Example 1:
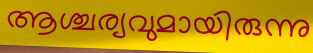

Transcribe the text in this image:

ആശ്ചര്യവുമായിരുന്നു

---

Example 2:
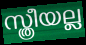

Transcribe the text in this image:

സ്ത്രീയല്ല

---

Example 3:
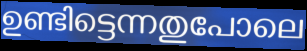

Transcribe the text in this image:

ഉണ്ടിട്ടെന്നതുപോലെ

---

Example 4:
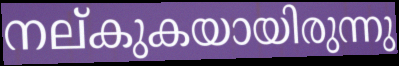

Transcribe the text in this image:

നല്കുകയായിരുന്നു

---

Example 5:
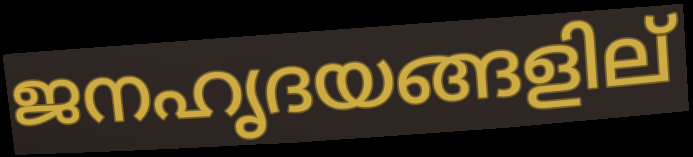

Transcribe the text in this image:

ജനഹൃദയങ്ങളില്